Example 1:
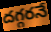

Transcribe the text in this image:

దగ్గరనే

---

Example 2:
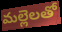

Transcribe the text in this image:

మల్లెలతో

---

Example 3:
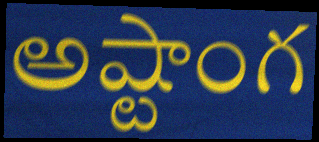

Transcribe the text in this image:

అష్టాంగ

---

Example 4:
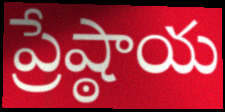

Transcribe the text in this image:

ప్రేష్ఠాయ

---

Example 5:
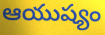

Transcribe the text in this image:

ఆయుష్యం